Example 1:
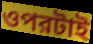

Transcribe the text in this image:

ওপরটাই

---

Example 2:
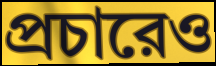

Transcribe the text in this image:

প্রচারেও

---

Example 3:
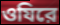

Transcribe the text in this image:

ওযিরে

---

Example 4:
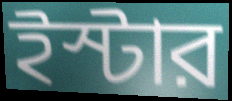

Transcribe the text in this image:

ইস্টার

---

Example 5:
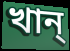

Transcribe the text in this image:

খান্